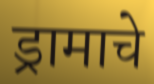
ड्रामाचे